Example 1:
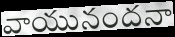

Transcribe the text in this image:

వాయునందనా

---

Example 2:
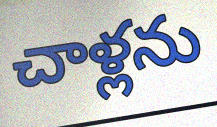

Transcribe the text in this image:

చాళ్లను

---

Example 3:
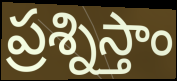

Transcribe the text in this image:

ప్రశ్నిస్తాం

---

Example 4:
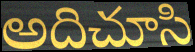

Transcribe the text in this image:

అదిచూసి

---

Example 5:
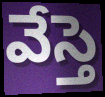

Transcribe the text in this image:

వేస్తె